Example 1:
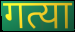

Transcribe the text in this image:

गत्या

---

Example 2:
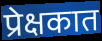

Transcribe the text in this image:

प्रेक्षकात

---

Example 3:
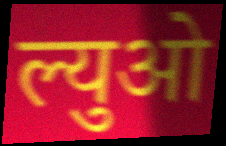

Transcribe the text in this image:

ल्युओ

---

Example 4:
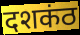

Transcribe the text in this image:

दशकंठ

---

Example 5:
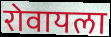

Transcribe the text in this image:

रोवायला